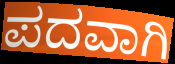
ಪದವಾಗಿ